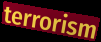
terrorism